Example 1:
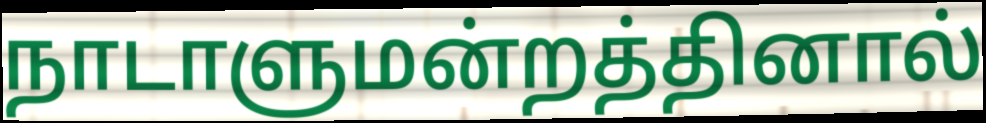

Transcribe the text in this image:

நாடாளுமன்றத்தினால்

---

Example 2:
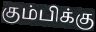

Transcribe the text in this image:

கும்பிக்கு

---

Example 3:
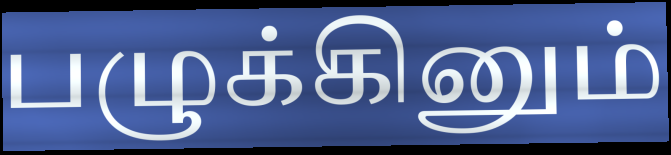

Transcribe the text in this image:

பழுக்கினும்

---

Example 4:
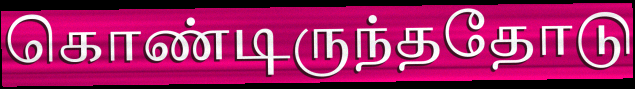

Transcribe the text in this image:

கொண்டிருந்ததோடு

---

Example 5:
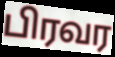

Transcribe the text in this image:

பிரவர